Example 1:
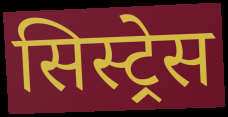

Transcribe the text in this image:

सिस्ट्रेस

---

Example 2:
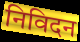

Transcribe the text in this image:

निविदन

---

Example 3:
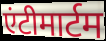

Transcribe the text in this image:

एंटीमार्टम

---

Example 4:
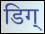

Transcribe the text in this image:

डिग्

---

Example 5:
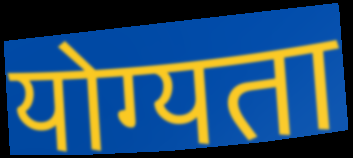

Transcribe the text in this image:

योग्यता